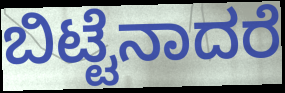
ಬಿಟ್ಟೆನಾದರೆ